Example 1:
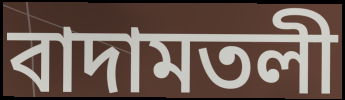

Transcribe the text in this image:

বাদামতলী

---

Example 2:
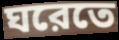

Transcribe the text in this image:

ঘরেতে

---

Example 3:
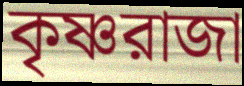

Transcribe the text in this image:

কৃষ্ণরাজা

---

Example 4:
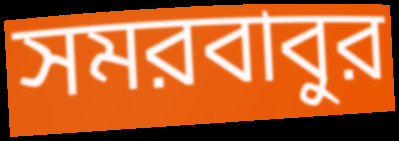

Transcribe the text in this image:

সমরবাবুর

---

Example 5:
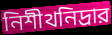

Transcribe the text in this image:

নিশীথনিদ্রার